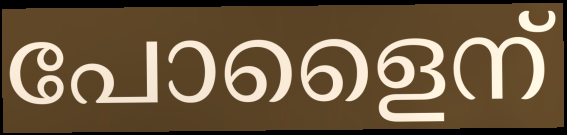
പോളൈന്